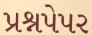
પ્રશ્નપેપર